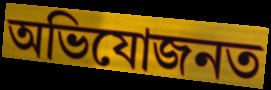
অভিযোজনত